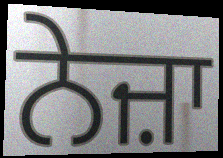
ਨੇਜ਼ਾ